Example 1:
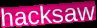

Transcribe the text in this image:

hacksaw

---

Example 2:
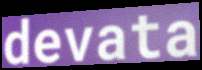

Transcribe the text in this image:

devata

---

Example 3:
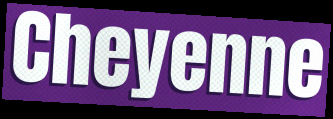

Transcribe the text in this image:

Cheyenne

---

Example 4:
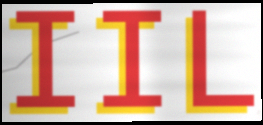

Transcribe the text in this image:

IIL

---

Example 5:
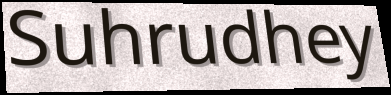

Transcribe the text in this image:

Suhrudhey